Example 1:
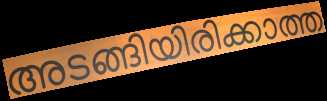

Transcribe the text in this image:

അടങ്ങിയിരിക്കാത്ത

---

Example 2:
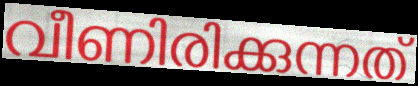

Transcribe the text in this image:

വീണിരിക്കുന്നത്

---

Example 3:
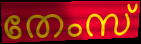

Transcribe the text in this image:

തേംസ്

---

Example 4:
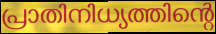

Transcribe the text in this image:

പ്രാതിനിധ്യത്തിന്റെ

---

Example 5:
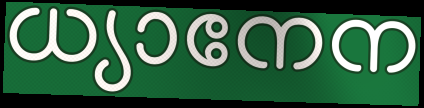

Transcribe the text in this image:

ധ്യാനേന